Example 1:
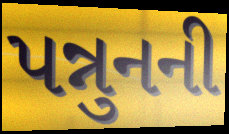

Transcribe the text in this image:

પન્નુનની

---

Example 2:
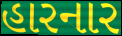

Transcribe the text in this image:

હારનાર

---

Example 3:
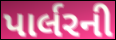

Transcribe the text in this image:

પાર્લરની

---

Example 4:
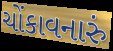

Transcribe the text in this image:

ચોંકાવનારું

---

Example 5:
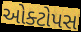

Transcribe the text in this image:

ઓક્ટોપસ